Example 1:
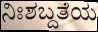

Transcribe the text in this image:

ನಿಃಶಬ್ದತೆಯ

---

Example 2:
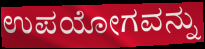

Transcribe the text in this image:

ಉಪಯೋಗವನ್ನು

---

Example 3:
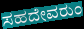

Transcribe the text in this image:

ಸಹದೇವರುಂ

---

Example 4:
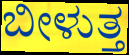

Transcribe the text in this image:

ಬೀಳುತ್ತ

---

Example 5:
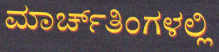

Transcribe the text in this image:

ಮಾರ್ಚ್‌ತಿಂಗಳಲ್ಲಿ